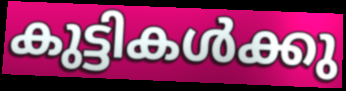
കുട്ടികൾക്കു